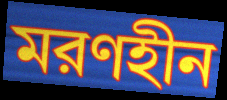
মরণহীন